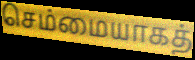
செம்மையாகத்